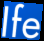
Ife